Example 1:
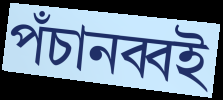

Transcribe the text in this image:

পঁচানব্বই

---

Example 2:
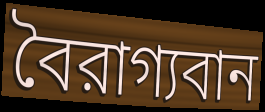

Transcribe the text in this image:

বৈরাগ্যবান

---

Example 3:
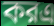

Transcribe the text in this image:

করএ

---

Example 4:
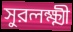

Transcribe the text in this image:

সুরলক্ষ্মী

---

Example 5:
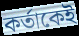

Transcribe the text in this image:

কর্তাকেই